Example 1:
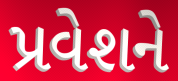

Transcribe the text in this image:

પ્રવેશને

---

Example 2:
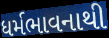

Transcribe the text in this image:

ધર્મભાવનાથી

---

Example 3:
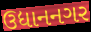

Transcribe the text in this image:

ઉદ્યાનનગર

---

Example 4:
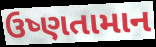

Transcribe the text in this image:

ઉષ્ણતામાન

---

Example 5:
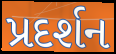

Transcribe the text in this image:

પ્રદર્શન